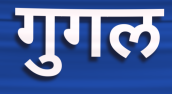
गुगल